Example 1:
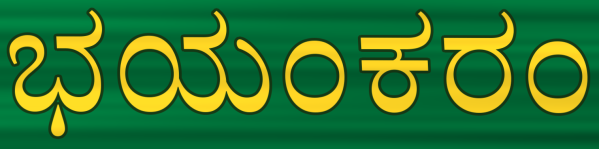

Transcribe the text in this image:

ಭಯಂಕರಂ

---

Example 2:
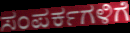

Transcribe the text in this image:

ಸಂಪರ್ಕಗಳಿಗೆ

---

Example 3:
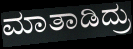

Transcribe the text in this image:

ಮಾತಾಡಿದ್ರು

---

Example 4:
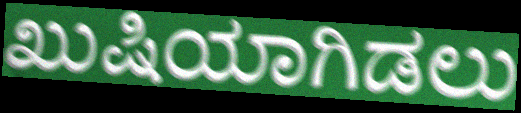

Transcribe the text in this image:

ಖುಷಿಯಾಗಿಡಲು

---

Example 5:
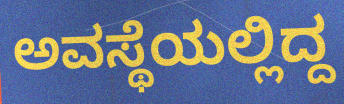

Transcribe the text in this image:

ಅವಸ್ಥೆಯಲ್ಲಿದ್ದ